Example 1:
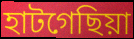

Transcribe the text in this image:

হাটগেছিয়া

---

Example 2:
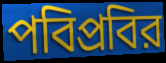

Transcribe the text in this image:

পবিপ্রবির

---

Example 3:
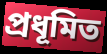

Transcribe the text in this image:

প্রধূমিত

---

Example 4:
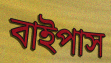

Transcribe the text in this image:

বাইপাস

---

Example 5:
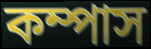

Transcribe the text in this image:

কম্পাস